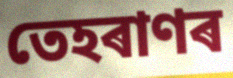
তেহৰাণৰ